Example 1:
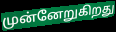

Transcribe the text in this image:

முன்னேறுகிறது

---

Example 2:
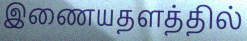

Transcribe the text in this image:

இணையதளத்தில்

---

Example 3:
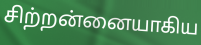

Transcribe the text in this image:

சிற்றன்னையாகிய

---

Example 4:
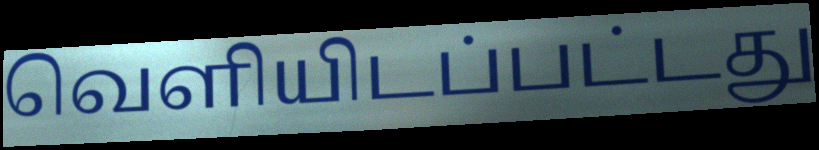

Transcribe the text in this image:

வெளியிடப்பட்டது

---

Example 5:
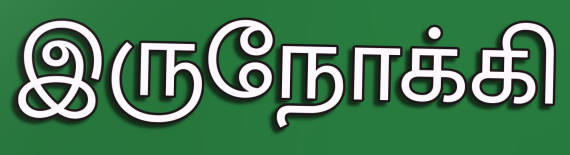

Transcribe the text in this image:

இருநோக்கி